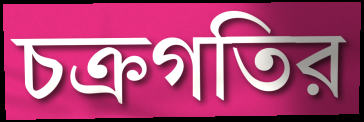
চক্রগতির